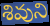
శివుని